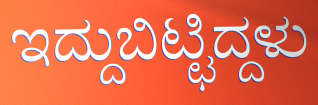
ಇದ್ದುಬಿಟ್ಟಿದ್ದಳು